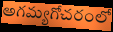
అగమ్యగోచరంలో